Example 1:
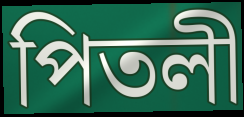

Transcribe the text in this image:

পিতলী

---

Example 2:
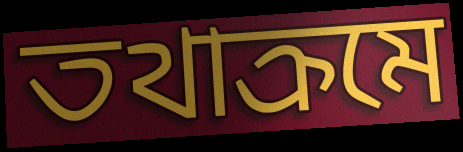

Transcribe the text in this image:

তথাক্ৰমে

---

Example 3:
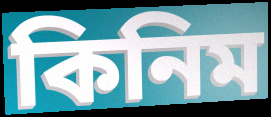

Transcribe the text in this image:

কিনিম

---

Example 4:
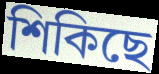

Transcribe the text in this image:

শিকিছে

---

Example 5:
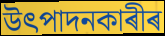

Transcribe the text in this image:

উৎপাদনকাৰীৰ